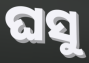
ଘସୁ